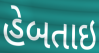
હેબતાઇ